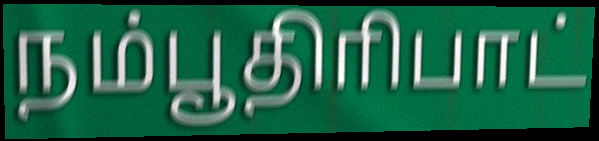
நம்பூதிரிபாட்